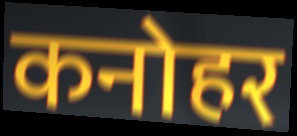
कनोहर